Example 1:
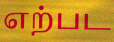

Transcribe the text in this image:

எற்பட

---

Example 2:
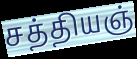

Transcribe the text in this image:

சத்தியஞ்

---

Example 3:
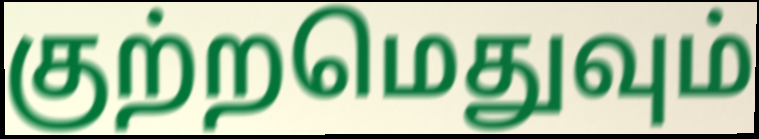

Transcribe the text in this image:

குற்றமெதுவும்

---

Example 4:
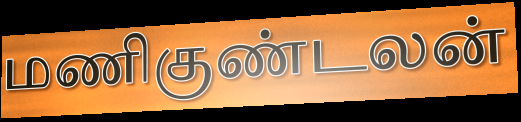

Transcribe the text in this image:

மணிகுண்டலன்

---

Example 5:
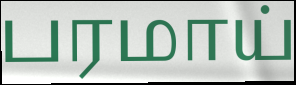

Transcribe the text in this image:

பரமாய்